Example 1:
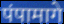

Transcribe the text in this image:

पंपामागे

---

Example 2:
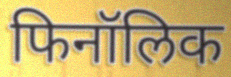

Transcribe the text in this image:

फिनॉलिक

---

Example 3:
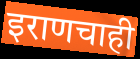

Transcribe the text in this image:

इराणचाही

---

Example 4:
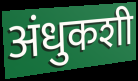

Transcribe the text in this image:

अंधुकशी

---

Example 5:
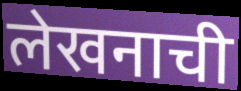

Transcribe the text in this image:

लेखनाची